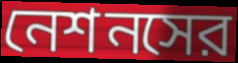
নেশনসের